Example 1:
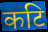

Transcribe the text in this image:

कटि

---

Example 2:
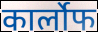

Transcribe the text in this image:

कार्लोफ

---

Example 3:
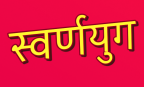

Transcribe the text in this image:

स्वर्णयुग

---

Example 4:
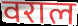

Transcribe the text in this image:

वराल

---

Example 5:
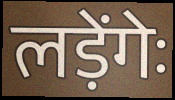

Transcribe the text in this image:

लड़ेंगेः